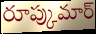
రూప్కుమార్